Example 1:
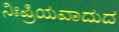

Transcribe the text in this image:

ನಿಃಪ್ರಿಯವಾದುದ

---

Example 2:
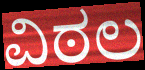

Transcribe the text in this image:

ವಿಠಲ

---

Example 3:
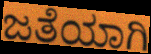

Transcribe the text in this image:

ಜತೆಯಾಗಿ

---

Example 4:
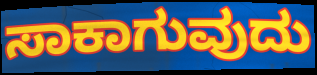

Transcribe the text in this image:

ಸಾಕಾಗುವುದು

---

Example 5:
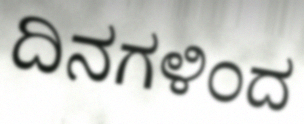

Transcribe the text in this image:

ದಿನಗಳಿಂದ